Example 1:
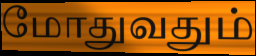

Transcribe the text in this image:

மோதுவதும்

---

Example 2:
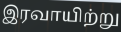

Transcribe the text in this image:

இரவாயிற்று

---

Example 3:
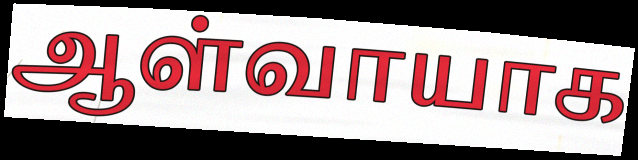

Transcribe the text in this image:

ஆள்வாயாக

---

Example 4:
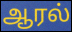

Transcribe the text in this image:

ஆரல்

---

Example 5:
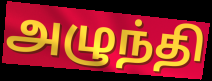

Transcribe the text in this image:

அழுந்தி